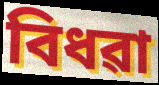
বিধৱা